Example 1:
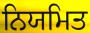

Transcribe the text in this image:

ਨਿਯਮਿਤ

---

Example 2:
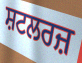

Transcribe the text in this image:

ਸ਼ਟਲਰਜ਼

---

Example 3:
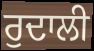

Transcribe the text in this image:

ਰੁਦਾਲੀ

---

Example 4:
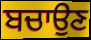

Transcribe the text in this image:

ਬਚਾਉਣ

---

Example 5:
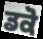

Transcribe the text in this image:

ਡਕੋ